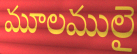
మూలములై